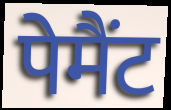
पेमैंट